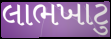
લાભખાટુ